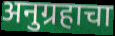
अनुग्रहाचा